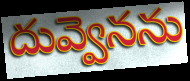
దువ్వెనను